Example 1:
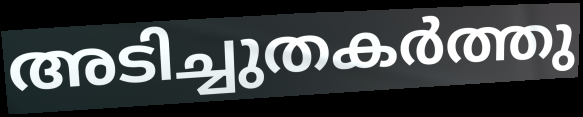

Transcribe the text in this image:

അടിച്ചുതകർത്തു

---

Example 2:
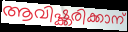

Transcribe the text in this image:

ആവിഷ്ക്കരിക്കാന്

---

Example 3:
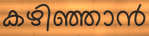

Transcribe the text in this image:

കഴിഞ്ഞാൻ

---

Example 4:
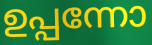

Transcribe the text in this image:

ഉപ്പന്നോ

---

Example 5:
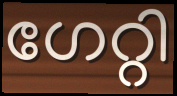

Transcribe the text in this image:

ഗേറ്റി